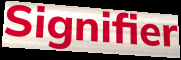
Signifier